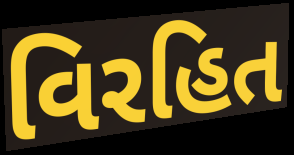
વિરહિત